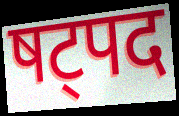
षट्पद